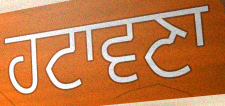
ਹਟਾਵਣਾ